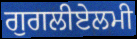
ਗੁਗਲੀਏਲਮੀ